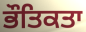
ਭੌਤਿਕਤਾ